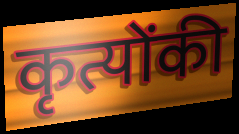
कृत्योंकी